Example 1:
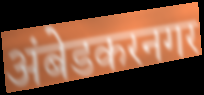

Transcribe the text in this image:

अंबेडकरनगर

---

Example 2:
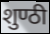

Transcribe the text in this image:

शुण्ठी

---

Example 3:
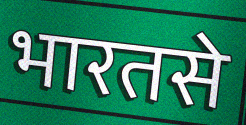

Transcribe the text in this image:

भारतसे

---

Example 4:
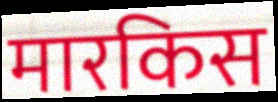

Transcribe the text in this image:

मारकिस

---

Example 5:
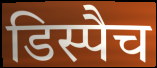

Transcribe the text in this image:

डिस्‍पैच